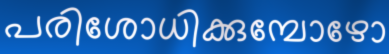
പരിശോധിക്കുമ്പോഴോ